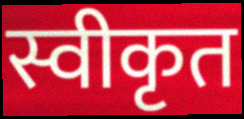
स्‍वीकृत